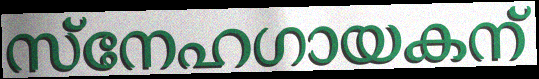
സ്നേഹഗായകന്